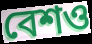
বেশও